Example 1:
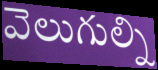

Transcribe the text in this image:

వెలుగుల్ని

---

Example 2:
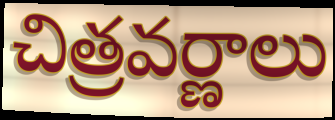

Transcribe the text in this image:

చిత్రవర్ణాలు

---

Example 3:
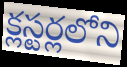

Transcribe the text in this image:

క్లస్టర్లలోని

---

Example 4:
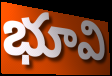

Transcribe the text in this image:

భూవి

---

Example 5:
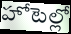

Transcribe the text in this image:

హోటెల్లో